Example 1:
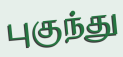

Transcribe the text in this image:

புகுந்து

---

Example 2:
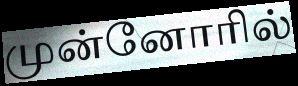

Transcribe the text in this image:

முன்னோரில்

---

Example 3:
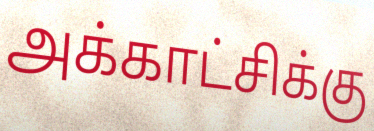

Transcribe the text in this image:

அக்காட்சிக்கு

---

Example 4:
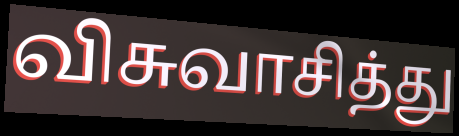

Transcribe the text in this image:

விசுவாசித்து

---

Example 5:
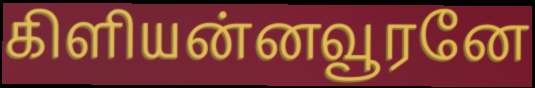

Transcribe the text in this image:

கிளியன்னவூரனே